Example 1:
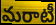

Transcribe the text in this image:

మరాటీ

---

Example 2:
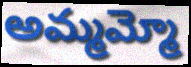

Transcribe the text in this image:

అమ్మమ్మో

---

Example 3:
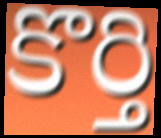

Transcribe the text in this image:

కొర్తి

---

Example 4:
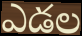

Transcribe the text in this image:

ఎడల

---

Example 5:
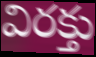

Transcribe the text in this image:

విరక్తు